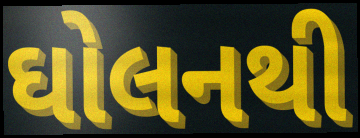
ઘોલનથી